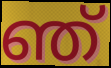
ഞ്